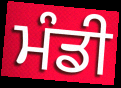
ਮੰਡੀ